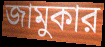
জামুকার